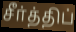
சீர்த்திப்